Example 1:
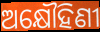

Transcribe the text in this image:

ଅକ୍ଷୌହିଣୀ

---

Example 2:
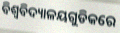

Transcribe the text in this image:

ବିଶ୍ଵବିଦ୍ୟାଳୟଗୁଡିକରେ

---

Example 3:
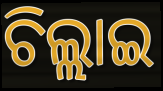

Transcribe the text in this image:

ଚିଲ୍ଲାଇ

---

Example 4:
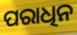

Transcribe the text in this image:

ପରାଧିନ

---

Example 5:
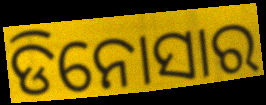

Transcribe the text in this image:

ଡିନୋସାର